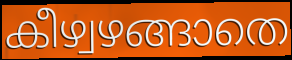
കീഴ്വഴങ്ങാതെ